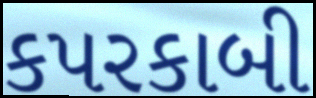
કપરકાબી